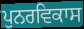
ਪੁਨਰਵਿਕਾਸ